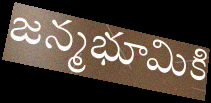
జన్మభూమికి